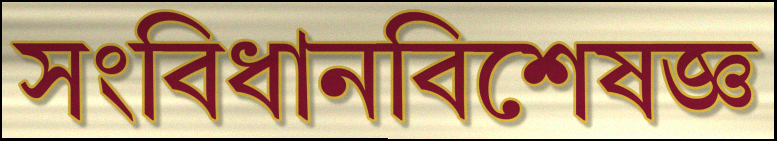
সংবিধানবিশেষজ্ঞ